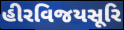
હીરવિજયસૂરિ